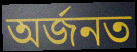
অৰ্জনত